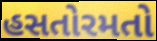
હસતોરમતો